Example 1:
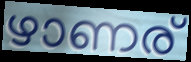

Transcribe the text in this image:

ഴാണര്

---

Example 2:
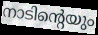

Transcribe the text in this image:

നാടിന്റെയും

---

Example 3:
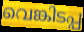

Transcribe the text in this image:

വെങ്കിടപ്പ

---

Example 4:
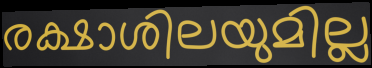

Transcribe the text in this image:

രക്ഷാശിലയുമില്ല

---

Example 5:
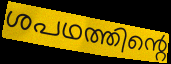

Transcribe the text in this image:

ശപഥത്തിന്റെ